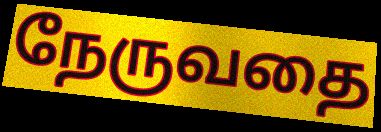
நேருவதை